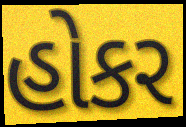
હોકર